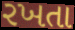
રખતા